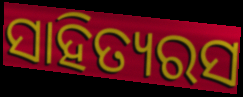
ସାହିତ୍ୟରସ